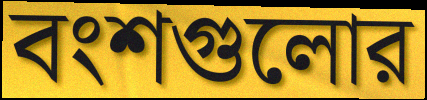
বংশগুলোর